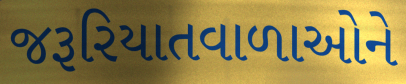
જરૂરિયાતવાળાઓને